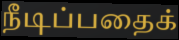
நீடிப்பதைக்